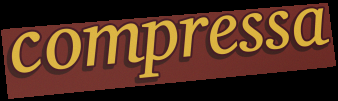
compressa